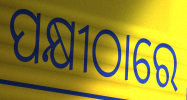
ପକ୍ଷୀଠାରେ